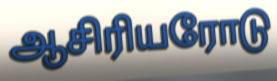
ஆசிரியரோடு